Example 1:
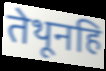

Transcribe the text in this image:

तेथूनहि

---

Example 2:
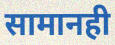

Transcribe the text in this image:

सामानही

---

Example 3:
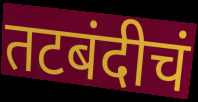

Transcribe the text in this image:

तटबंदीचं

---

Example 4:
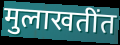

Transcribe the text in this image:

मुलाखतींत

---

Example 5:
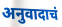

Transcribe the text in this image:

अनुवादाचं